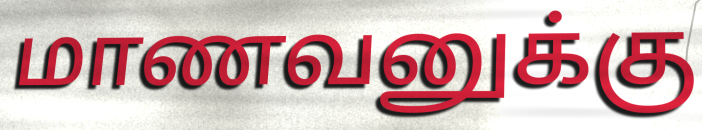
மாணவனுக்கு